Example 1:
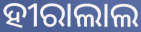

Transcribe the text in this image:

ହୀରାଲାଲ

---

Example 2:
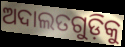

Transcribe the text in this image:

ଅଦାଲତଗୁଡ଼ିକୁ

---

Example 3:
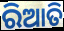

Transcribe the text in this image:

ରିଆତି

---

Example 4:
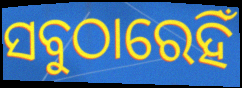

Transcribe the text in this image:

ସବୁଠାରେହିଁ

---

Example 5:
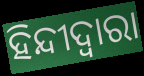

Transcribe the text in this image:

ହିନ୍ଦୀଦ୍ଵାରା